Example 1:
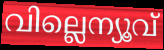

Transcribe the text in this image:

വില്ലെന്യൂവ്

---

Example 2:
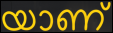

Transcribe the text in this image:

യാണ്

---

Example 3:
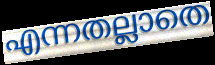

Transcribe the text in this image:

എന്നതല്ലാതെ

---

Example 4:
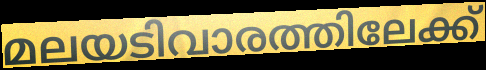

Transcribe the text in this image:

മലയടിവാരത്തിലേക്ക്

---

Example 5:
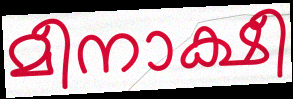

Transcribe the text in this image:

മീനാക്ഷീ